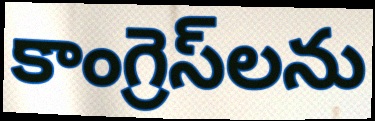
కాంగ్రెస్‌లను